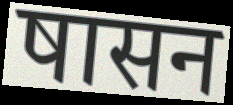
षासन